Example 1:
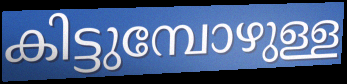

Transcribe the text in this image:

കിട്ടുമ്പോഴുള്ള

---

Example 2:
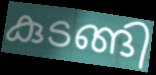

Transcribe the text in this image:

കുടങ്ങി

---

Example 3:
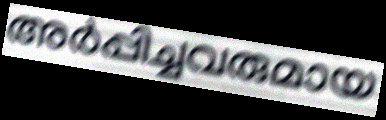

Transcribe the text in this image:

അർപ്പിച്ചവരുമായ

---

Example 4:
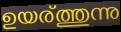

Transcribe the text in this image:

ഉയര്ത്തുന്നു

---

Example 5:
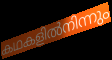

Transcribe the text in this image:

കഥകളിൽനിന്നും